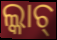
ଲ୍କାଚ୍